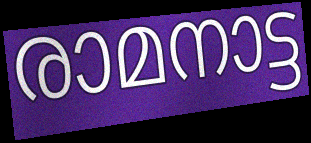
രാമനാട്ട